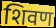
शिवण